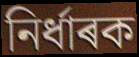
নিৰ্ধাৰক